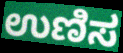
ಉಣಿಸ